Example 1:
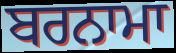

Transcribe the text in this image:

ਬਰਨਾਮਾ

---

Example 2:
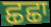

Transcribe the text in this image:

ਛਛਾ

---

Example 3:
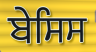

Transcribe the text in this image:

ਬੇਸਿਸ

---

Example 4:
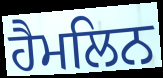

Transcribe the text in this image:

ਹੈਮਲਿਨ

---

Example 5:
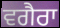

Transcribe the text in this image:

ਵਗੈਰਾ